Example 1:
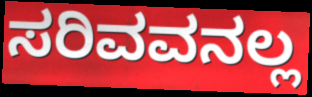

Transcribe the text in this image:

ಸರಿವವನಲ್ಲ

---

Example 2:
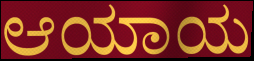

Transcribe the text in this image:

ಆಯಾಯ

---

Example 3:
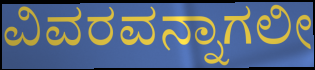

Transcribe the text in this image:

ವಿವರವನ್ನಾಗಲೀ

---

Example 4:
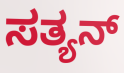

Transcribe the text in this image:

ಸತ್ಯನ್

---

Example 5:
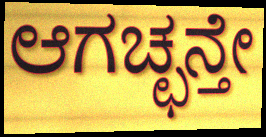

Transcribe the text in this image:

ಆಗಚ್ಛನ್ತೇ